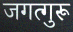
जगत्गुरू